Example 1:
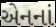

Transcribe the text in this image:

એનનાં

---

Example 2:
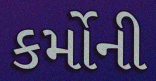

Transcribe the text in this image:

કર્મોની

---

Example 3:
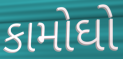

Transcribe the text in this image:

કામોઘો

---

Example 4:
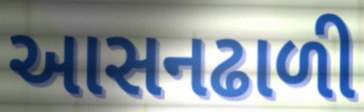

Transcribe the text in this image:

આસનઢાળી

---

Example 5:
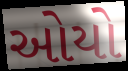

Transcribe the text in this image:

ઓયો